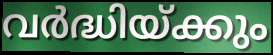
വർദ്ധിയ്ക്കും